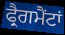
ਫ੍ਰੈਗਮੈਂਟਾਂ